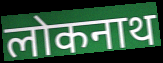
लोकनाथ